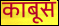
काबूस